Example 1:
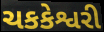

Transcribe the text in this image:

ચકકેશ્વરી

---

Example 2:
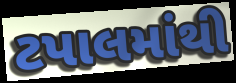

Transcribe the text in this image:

ટપાલમાંથી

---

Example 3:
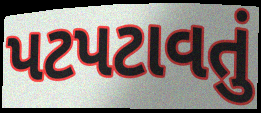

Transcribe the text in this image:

પટપટાવતું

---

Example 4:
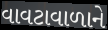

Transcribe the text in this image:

વાવટાવાળાને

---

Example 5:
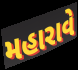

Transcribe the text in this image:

મહારાવે